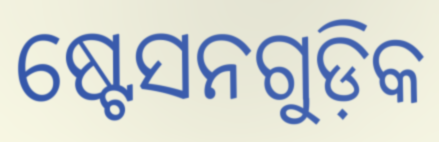
ଷ୍ଟେସନଗୁଡ଼ିକ